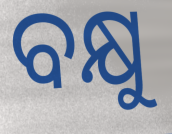
ବକ୍ଷୁ